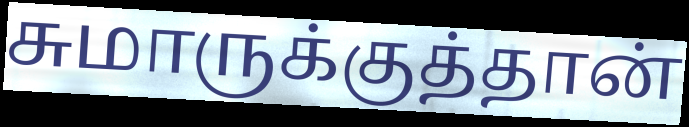
சுமாருக்குத்தான்